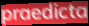
praedicta